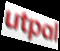
utpal